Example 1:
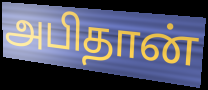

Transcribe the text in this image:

அபிதான்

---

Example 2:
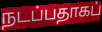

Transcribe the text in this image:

நடப்பதாகப்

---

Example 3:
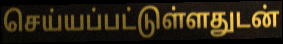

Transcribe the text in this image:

செய்யப்பட்டுள்ளதுடன்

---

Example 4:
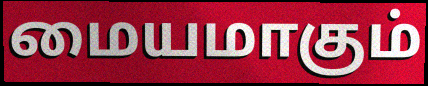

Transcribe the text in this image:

மையமாகும்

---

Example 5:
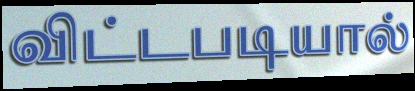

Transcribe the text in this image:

விட்டபடியால்